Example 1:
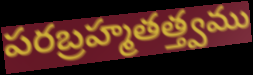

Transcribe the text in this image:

పరబ్రహ్మతత్త్వము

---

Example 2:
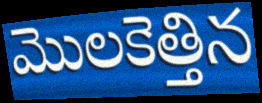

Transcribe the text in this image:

మొలకెత్తిన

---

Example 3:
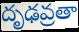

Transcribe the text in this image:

దృఢవ్రతా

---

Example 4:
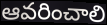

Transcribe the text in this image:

ఆవరించాలి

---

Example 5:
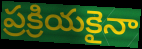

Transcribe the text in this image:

ప్రక్రియకైనా